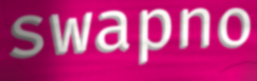
swapno